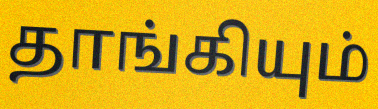
தாங்கியும்